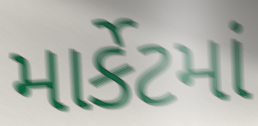
માર્કેટમાં